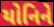
યોનિને